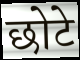
छोटे